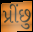
પ્રીંછુ